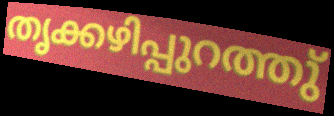
തൃക്കഴിപ്പുറത്തു്